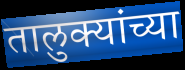
तालुक्यांच्या